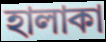
হালাকা